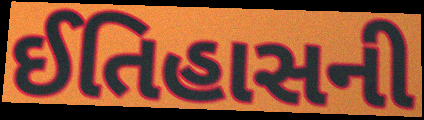
ઈતિહાસની